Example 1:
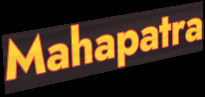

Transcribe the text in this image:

Mahapatra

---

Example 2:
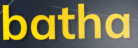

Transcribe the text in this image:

batha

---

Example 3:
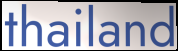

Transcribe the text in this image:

thailand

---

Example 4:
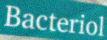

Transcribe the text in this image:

Bacteriol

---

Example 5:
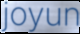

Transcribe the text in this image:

joyun